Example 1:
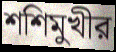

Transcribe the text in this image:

শশিমুখীর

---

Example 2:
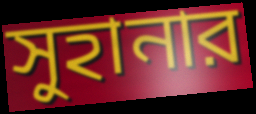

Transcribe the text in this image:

সুহানার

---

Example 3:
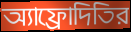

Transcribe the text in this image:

অ্যাফ্রোদিতির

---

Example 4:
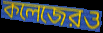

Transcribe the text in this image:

কলেজেরও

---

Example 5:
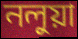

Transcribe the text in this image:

নলুয়া